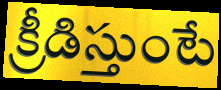
క్రీడిస్తుంటే